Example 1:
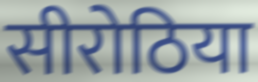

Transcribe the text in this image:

सीरोठिया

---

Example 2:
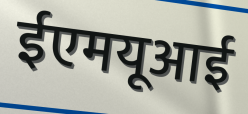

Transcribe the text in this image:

ईएमयूआई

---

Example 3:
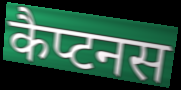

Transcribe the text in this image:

कैप्टनस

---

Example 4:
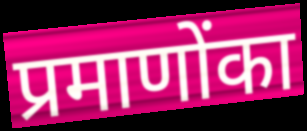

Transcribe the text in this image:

प्रमाणोंका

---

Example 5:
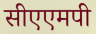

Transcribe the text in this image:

सीएएमपी